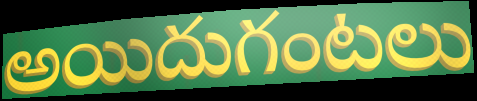
అయిదుగంటలు